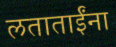
लताताईंना